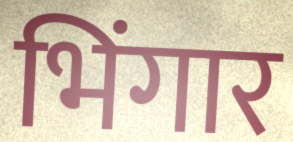
भिंगार